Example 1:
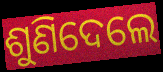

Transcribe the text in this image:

ଶୁଣିଦେଲେ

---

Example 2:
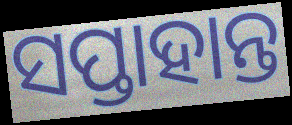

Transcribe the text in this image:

ସପ୍ତାହାନ୍ତ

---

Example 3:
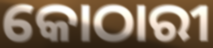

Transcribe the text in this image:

କୋଠାରୀ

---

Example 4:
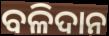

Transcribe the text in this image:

ବଳିଦାନ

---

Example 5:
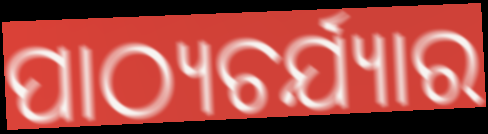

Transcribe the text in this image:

ପାଠ୍ୟଚର୍ଯ୍ୟାର